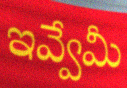
ఇవ్వేమీ